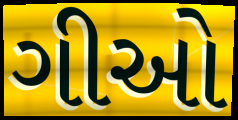
ગીઓ